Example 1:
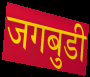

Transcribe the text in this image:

जगबुडी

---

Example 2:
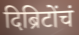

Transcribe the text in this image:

दिब्रिटोंचं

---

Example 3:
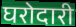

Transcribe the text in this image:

घरोदारी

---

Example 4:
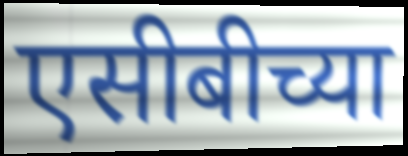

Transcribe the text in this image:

एसीबीच्या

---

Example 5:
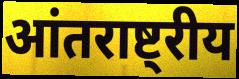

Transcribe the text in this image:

आंतराष्ट्रीय